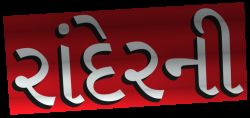
રાંદેરની